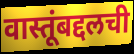
वास्तूंबद्दलची